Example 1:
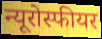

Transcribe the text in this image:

न्यूरोस्फीयर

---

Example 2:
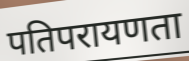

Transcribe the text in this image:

पतिपरायणता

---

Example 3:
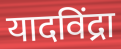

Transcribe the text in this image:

यादविंद्रा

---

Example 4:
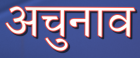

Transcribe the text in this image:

अचुनाव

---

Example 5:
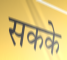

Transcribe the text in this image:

सकके